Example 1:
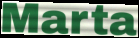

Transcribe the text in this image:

Marta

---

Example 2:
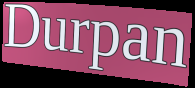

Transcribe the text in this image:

Durpan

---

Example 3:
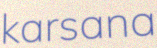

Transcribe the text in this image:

karsana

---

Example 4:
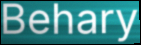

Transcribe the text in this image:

Behary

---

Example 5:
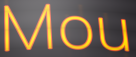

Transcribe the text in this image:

Mou